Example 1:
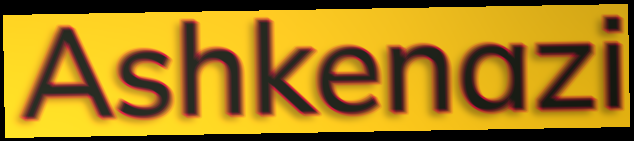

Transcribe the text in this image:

Ashkenazi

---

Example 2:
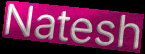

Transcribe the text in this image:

Natesh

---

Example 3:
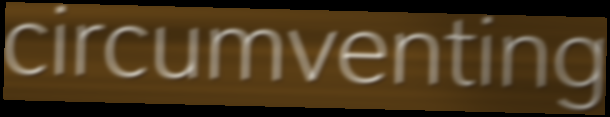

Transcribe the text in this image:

circumventing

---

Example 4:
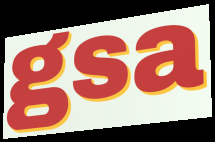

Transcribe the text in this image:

gsa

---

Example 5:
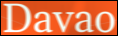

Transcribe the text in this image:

Davao